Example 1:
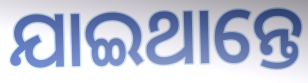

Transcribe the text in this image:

ଯାଇଥାନ୍ତେ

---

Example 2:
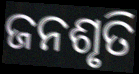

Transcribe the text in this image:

ଜନଶୃତି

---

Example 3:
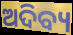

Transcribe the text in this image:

ଅଦିବ୍ୟ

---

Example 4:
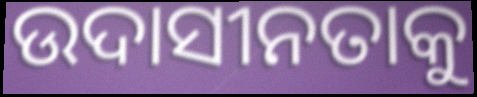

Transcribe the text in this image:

ଉଦାସୀନତାକୁ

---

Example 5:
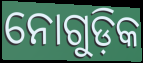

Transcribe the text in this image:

ନୋଗୁଡ଼ିକ